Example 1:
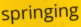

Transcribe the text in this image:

springing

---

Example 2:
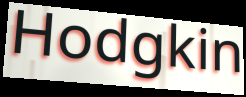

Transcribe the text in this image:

Hodgkin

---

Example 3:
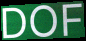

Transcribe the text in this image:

DOF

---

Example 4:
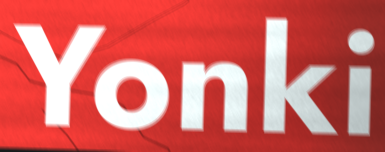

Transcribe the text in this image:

Yonki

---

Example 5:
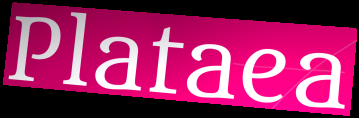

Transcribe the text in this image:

Plataea